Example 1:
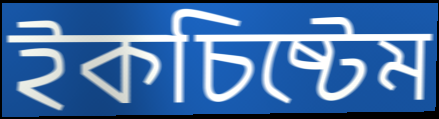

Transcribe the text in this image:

ইকচিষ্টেম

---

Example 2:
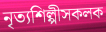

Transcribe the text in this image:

নৃত্যশিল্পীসকলক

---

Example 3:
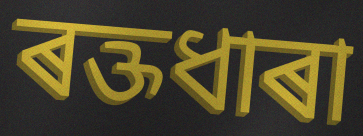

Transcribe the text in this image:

ৰক্তধাৰা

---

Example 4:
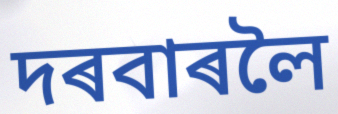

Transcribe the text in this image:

দৰবাৰলৈ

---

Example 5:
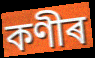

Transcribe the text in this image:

কণীৰ